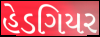
હેડગિયર